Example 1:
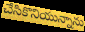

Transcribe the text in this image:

చేసికొనియున్నాను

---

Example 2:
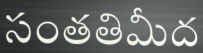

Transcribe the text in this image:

సంతతిమీద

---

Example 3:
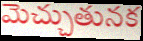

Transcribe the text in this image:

మెచ్చుతునక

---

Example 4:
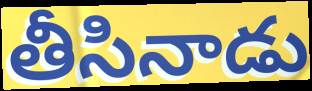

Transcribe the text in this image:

తీసినాడు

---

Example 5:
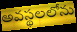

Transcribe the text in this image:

అవస్థలలోను